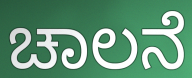
ಚಾಲನೆ